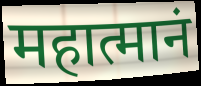
महात्मानं